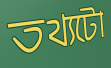
তথ্যটো